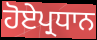
ਹੋਏਪ੍ਰਧਾਨ